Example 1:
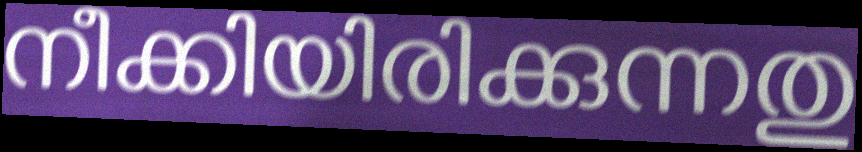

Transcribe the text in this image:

നീക്കിയിരിക്കുന്നതു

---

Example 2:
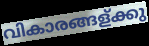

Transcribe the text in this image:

വികാരങ്ങള്ക്കു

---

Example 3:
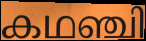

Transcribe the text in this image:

കഥഞ്ചി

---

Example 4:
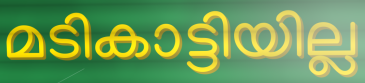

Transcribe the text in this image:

മടികാട്ടിയില്ല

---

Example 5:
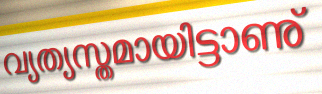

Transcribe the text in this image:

വ്യത്യസ്തമായിട്ടാണു്